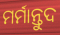
ମର୍ମାନ୍ତୁଦ